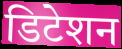
डिटेशन